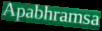
Apabhramsa